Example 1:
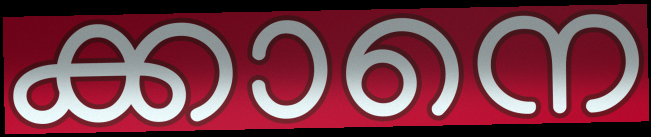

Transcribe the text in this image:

ക്കാനെ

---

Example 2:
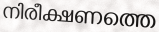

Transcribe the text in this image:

നിരീക്ഷണത്തെ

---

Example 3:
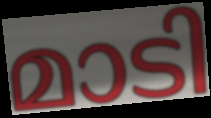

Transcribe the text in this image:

മാടി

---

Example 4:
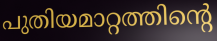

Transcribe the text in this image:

പുതിയമാറ്റത്തിന്റെ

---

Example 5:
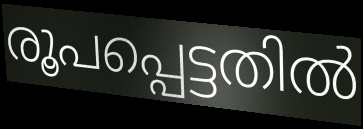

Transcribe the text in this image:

രൂപപ്പെട്ടതിൽ